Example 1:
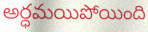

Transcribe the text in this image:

అర్ధమయిపోయింది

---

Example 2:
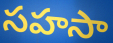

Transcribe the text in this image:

సహసా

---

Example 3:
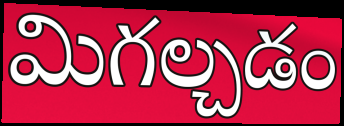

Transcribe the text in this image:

మిగల్చడం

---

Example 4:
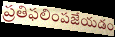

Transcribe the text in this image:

ప్రతిఫలింపజేయడం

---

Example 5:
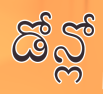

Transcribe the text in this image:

డోన్లో